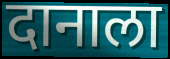
दानाला